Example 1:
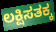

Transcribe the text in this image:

ಲಕ್ಷಿಸತಕ್ಕ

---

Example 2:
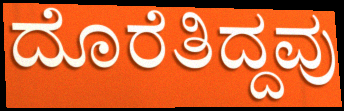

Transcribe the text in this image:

ದೊರೆತಿದ್ದವು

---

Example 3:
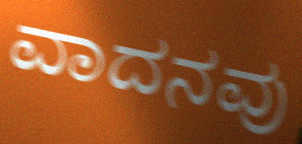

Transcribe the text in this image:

ವಾದನವು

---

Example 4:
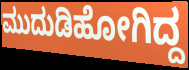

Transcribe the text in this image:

ಮುದುಡಿಹೋಗಿದ್ದ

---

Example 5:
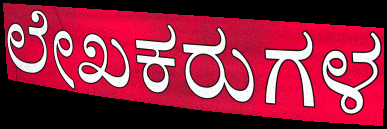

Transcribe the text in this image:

ಲೇಖಕರುಗಳ